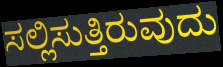
ಸಲ್ಲಿಸುತ್ತಿರುವುದು